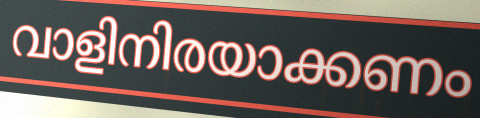
വാളിനിരയാക്കണം